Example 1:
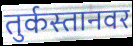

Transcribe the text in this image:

तुर्कस्तानवर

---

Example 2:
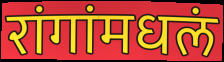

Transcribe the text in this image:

रांगांमधलं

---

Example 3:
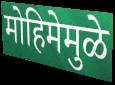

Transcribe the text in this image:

मोहिमेमुळे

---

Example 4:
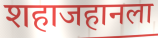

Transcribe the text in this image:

शहाजहानला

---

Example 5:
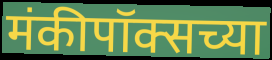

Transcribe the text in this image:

मंकीपॉक्सच्या